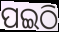
ପଇଠି